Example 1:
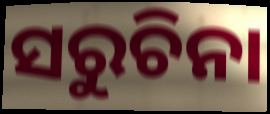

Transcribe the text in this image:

ସରୁଚିନା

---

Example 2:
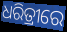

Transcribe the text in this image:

ଧରିତ୍ରୀରେ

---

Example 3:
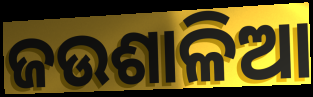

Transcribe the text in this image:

ଜଉଶାଳିଆ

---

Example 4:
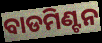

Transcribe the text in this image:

ବାଡମିଣ୍ଟନ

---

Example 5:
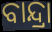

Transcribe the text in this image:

ବାନ୍ଦ୍ରା